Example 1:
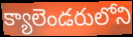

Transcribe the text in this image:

క్యాలెండరులోని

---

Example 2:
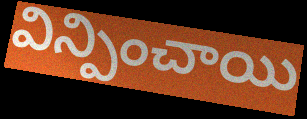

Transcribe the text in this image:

విన్పించాయి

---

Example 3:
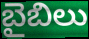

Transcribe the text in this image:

బైబిలు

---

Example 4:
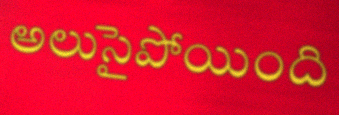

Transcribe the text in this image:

అలుసైపోయింది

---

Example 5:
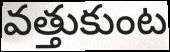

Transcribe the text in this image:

వత్తుకుంట